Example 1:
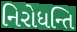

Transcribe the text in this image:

નિરોધન્તિ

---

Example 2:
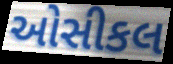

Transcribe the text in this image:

ઓસીકલ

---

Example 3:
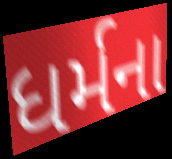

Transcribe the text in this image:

ધર્મના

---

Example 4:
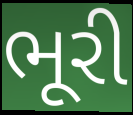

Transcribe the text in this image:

ભૂરી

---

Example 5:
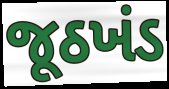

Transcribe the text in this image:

જૂઠખંડ